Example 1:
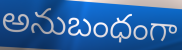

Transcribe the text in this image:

అనుబంధంగా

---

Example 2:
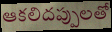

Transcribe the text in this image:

ఆకలిదప్పులతో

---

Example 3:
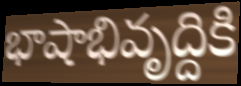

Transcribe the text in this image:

భాషాభివృద్దికి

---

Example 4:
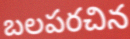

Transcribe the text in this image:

బలపరచిన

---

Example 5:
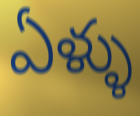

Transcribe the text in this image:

ఏళ్ళు